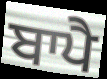
ਬਾਪੈ